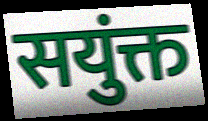
सयुंक्त